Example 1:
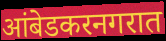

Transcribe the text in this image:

आंबेडकरनगरात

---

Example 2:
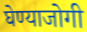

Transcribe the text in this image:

घेण्याजोगी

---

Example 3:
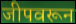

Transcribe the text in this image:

जीपवरून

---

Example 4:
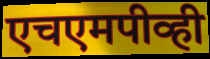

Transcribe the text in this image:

एचएमपीव्ही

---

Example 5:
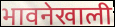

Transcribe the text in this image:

भावनेखाली